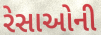
રેસાઓની